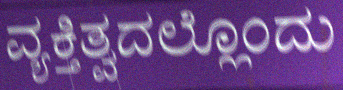
ವ್ಯಕ್ತಿತ್ವದಲ್ಲೊಂದು